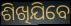
ଶିଖିଯିବେ